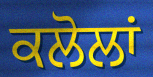
ਕਲੋਲਾਂ